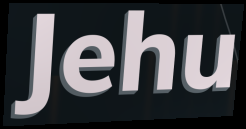
Jehu